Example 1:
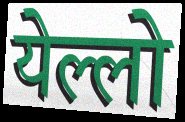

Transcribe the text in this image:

येल्लो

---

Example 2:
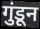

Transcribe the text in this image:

गुंडून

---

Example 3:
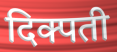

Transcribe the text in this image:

दिक्पती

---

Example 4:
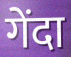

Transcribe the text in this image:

गेंदा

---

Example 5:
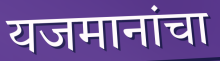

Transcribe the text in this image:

यजमानांचा